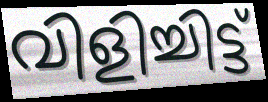
വിളിച്ചിട്ട്